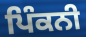
ਪਿੰਕਨੀ